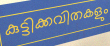
കുട്ടിക്കവിതകളും